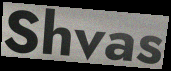
Shvas